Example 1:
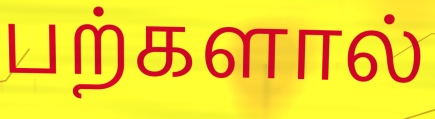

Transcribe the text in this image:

பற்களால்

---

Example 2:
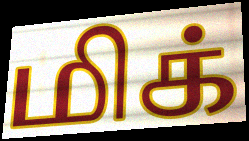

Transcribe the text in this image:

மிக்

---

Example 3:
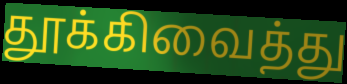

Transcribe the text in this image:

தூக்கிவைத்து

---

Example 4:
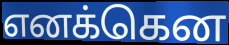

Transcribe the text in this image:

எனக்கென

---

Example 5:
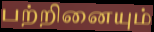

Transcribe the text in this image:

பற்றினையும்